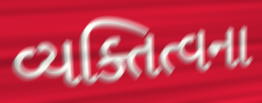
વ્યક્તિત્વના